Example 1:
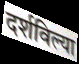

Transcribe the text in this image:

दर्शविल्या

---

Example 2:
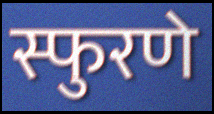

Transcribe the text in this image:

स्फुरणे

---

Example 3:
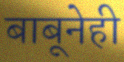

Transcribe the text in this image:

बाबूनेही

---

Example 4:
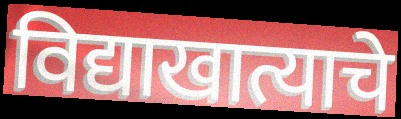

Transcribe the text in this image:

विद्याखात्याचे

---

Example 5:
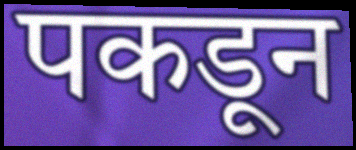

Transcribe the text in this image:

पकडून